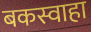
बकस्वाहा